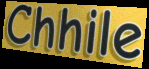
Chhile